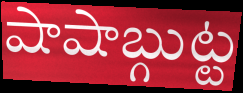
షాషాబ్గుట్ట